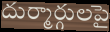
దుర్మార్గులపై